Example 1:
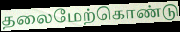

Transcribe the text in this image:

தலைமேற்கொண்டு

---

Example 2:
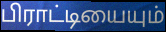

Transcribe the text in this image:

பிராட்டியையும்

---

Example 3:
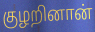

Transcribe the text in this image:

குழறினான்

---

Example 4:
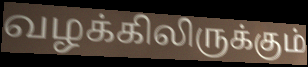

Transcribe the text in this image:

வழக்கிலிருக்கும்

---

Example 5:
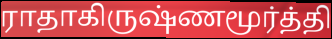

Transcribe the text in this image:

ராதாகிருஷ்ணமூர்த்தி